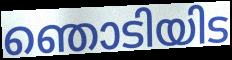
ഞൊടിയിട